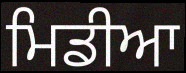
ਮਿਡੀਆ